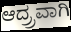
ಆದ್ರ್ರವಾಗಿ